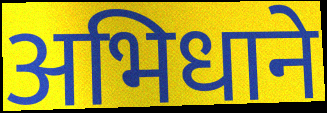
अभिधाने